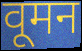
वूमन